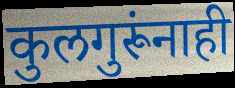
कुलगुरूंनाही